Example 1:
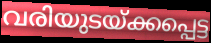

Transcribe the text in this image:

വരിയുടയ്ക്കപ്പെട്ട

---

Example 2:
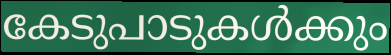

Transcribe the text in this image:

കേടുപാടുകൾക്കും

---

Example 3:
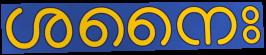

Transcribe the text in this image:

ശനൈഃ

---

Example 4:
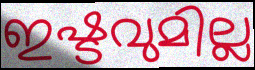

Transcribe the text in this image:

ഇഷ്ടവുമില്ല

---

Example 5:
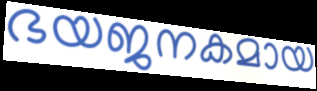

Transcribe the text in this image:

ഭയജനകമായ